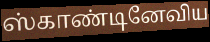
ஸ்காண்டினேவிய